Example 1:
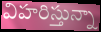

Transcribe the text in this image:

విహరిస్తున్నా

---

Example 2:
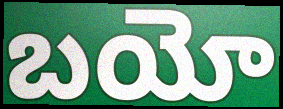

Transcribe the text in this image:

బయో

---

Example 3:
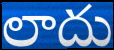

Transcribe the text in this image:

లాదు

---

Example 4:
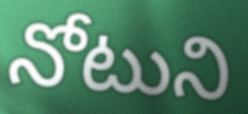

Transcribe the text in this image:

నోటుని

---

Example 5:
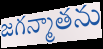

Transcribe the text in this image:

జగన్మాతను